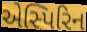
એસ્પિરિન